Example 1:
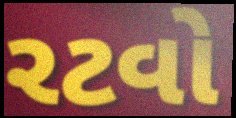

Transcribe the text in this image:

રટવો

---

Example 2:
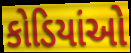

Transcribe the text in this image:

કોડિયાંઓ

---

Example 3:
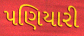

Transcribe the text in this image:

પણિયારી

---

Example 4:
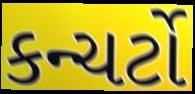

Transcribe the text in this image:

કન્ચર્ટો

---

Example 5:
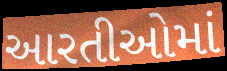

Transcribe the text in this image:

આરતીઓમાં